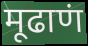
मूढाणं